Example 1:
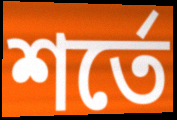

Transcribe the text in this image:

শর্তে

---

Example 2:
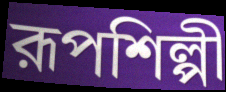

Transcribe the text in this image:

রূপশিল্পী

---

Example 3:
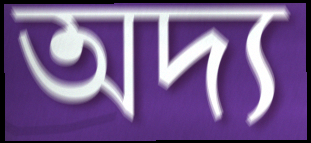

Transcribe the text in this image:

অদ্য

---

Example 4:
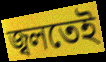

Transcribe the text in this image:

জ্বলতেই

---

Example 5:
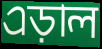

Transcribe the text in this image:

এড়াল